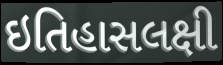
ઇતિહાસલક્ષી